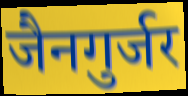
जैनगुर्जर